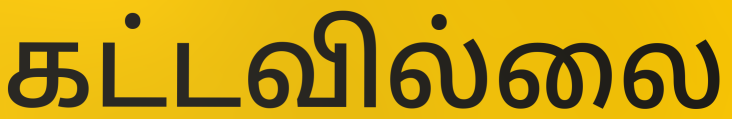
கட்டவில்லை